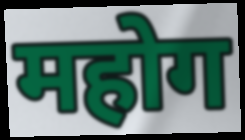
महोग